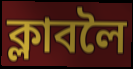
ক্লাবলৈ